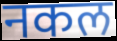
नकल